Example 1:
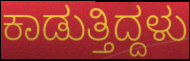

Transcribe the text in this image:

ಕಾಡುತ್ತಿದ್ದಳು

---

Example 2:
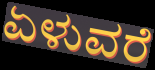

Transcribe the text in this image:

ಏಳುವರೆ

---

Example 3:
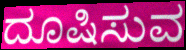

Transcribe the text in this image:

ದೂಷಿಸುವ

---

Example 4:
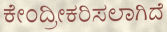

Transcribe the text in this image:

ಕೇಂದ್ರೀಕರಿಸಲಾಗಿದೆ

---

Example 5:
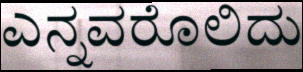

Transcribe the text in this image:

ಎನ್ನವರೊಲಿದು